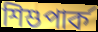
শিশুপার্ক